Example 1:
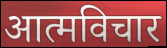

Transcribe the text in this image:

आत्मविचार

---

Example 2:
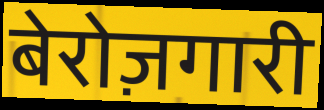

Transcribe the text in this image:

बेरोज़गारी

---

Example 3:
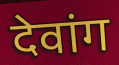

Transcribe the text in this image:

देवांग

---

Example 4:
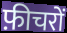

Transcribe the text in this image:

फ़ीचरों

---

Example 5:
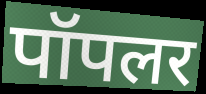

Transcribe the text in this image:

पॉपलर